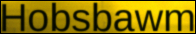
Hobsbawm